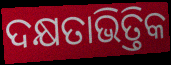
ଦକ୍ଷତାଭିତ୍ତିକ